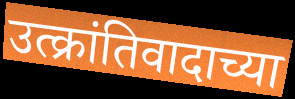
उत्क्रांतिवादाच्या